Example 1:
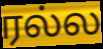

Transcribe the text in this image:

ரல்ல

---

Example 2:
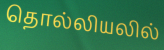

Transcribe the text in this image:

தொல்லியலில்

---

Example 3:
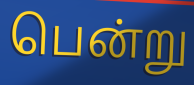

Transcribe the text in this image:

பென்று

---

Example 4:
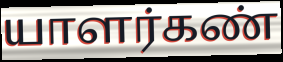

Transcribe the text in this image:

யாளர்கண்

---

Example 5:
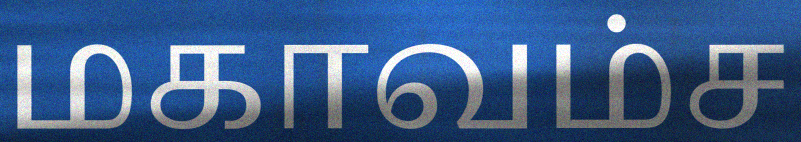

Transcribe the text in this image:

மகாவம்ச